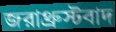
জরাথ্রুস্টবাদ